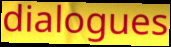
dialogues